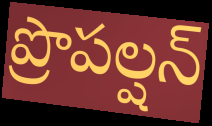
ప్రొపల్షన్